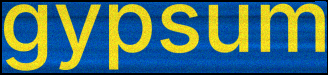
gypsum